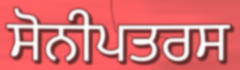
ਸੋਨੀਪਤਰਸ